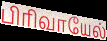
பிரிவாயேல்